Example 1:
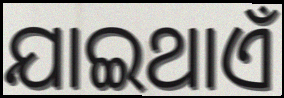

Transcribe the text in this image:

ଯାଇଥାଏଁ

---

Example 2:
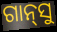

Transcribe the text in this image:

ଗାନ୍‍ସୁ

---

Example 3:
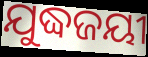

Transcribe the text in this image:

ଯୁଦ୍ଧଜୟୀ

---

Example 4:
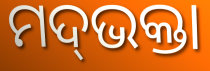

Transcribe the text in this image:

ମଦ୍‌ଭକ୍ତା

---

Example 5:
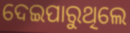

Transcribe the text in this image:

ଦେଇପାରୁଥିଲେ